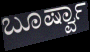
ಬೂರ್ಷ್ವಾ